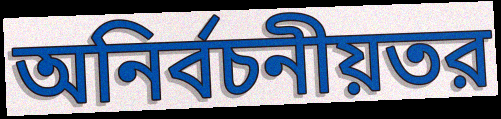
অনির্বচনীয়তর